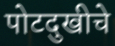
पोटदुखीचे